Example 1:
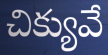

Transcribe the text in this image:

చిక్యువే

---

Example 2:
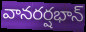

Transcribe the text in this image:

వానరర్షభాన్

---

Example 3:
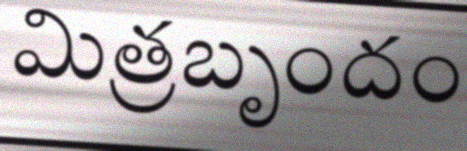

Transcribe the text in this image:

మిత్రబృందం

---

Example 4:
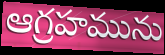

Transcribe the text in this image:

ఆగ్రహమును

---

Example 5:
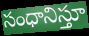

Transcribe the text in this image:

సంధానిస్తూ